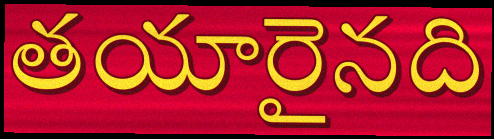
తయారైనది